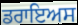
ਡਰਾਇਅਸ